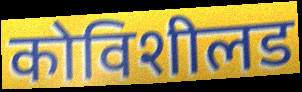
कोविशीलड